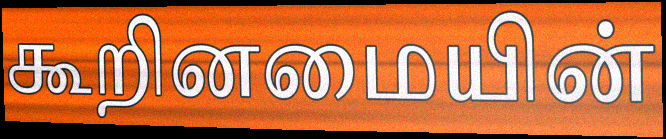
கூறினமையின்